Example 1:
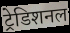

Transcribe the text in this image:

ट्रेडिशनल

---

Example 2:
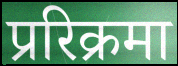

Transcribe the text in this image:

प्ररिक्रमा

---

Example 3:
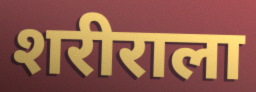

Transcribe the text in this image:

शरीराला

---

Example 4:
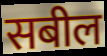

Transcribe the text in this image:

सबील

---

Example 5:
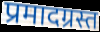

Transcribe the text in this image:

प्रमादग्रस्त